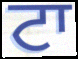
ਟਾ